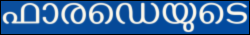
ഫാരഡെയുടെ